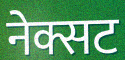
नेक्सट